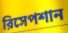
রিসেপশান